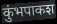
कुंभपाकश